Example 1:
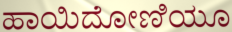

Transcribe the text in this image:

ಹಾಯಿದೋಣಿಯೂ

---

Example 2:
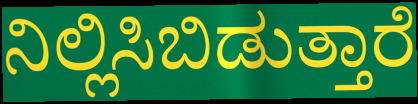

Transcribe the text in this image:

ನಿಲ್ಲಿಸಿಬಿಡುತ್ತಾರೆ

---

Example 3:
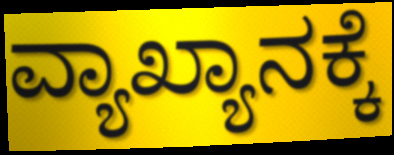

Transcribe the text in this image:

ವ್ಯಾಖ್ಯಾನಕ್ಕೆ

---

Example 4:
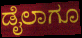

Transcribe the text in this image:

ಡೈಲಾಗೂ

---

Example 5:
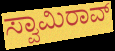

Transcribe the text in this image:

ಸ್ವಾಮಿರಾವ್